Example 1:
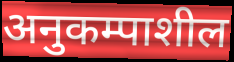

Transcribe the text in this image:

अनुकम्पाशील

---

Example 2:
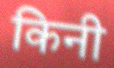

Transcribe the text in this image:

किनी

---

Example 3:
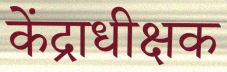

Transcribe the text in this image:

केंद्राधीक्षक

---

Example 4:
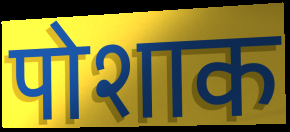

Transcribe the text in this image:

पोशाक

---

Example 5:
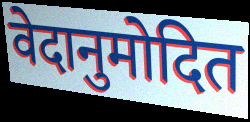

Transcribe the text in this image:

वेदानुमोदित